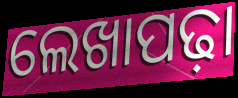
ଲେଖାପଢ଼ା